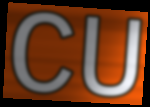
CU